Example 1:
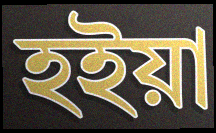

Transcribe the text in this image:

হইয়া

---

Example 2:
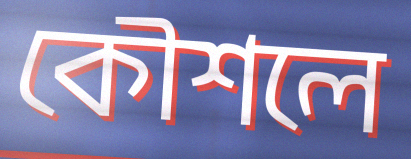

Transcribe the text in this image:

কৌশলে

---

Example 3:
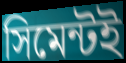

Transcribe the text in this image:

সিমেন্টই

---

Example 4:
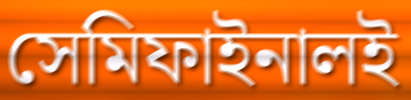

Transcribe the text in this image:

সেমিফাইনালই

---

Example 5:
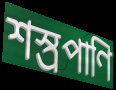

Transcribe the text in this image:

শস্ত্রপাণি